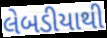
લેબડીયાથી